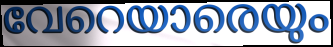
വേറെയാരെയും